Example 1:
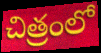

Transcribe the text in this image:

చిత్రంలో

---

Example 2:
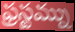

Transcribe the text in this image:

ఫ్రస్టమ్ను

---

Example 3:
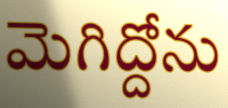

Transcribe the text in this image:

మెగిద్దోను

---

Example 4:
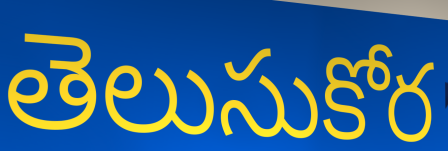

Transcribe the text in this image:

తెలుసుకోర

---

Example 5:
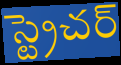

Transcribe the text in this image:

స్ట్రెచర్